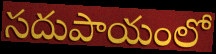
సదుపాయంలో